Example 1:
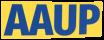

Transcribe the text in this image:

AAUP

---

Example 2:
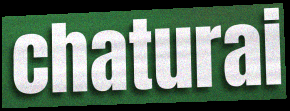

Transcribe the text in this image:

chaturai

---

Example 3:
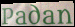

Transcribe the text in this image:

Padan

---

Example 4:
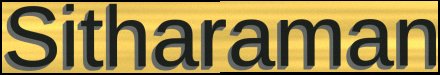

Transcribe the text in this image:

Sitharaman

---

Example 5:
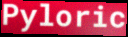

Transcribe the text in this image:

Pyloric